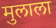
मुलाला